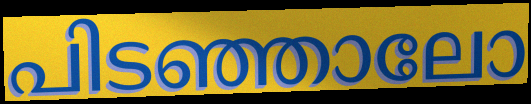
പിടഞ്ഞാലോ